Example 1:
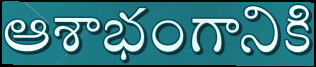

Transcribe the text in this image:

ఆశాభంగానికి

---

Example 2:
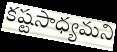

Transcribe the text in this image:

కష్టసాధ్యమని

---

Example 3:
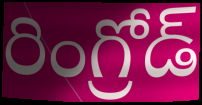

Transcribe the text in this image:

రింగ్రోడ్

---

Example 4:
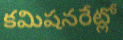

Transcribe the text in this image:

కమిషనరేట్లో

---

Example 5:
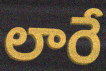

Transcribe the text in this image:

లారే